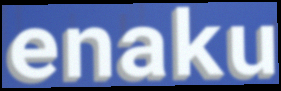
enaku